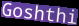
Goshthi